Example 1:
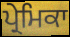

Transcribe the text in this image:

ਪ੍ਰੇਮਿਕਾ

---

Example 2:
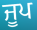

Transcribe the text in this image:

ਜੂਪ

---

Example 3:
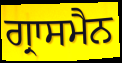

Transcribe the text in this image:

ਗ੍ਰਾਸਮੈਨ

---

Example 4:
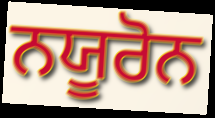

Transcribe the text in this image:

ਨਯੂਰੋਨ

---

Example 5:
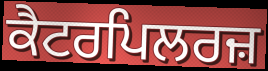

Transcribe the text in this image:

ਕੈਟਰਪਿਲਰਜ਼